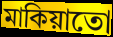
মাকিয়াতো